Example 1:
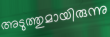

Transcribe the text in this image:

അടുത്തുമായിരുന്നു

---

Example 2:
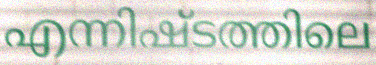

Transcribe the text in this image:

എന്നിഷ്ടത്തിലെ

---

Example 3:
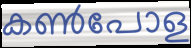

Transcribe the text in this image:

കൺപോള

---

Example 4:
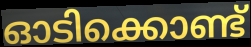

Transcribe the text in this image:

ഓടിക്കൊണ്ട്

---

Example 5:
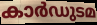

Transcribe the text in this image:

കാർഡുടമ